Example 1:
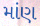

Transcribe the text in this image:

માંણ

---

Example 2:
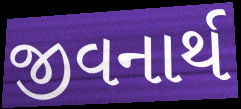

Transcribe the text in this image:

જીવનાર્થ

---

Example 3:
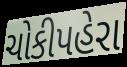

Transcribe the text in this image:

ચોકીપહેરા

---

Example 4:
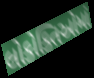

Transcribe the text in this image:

લોકોક્તિઓમાં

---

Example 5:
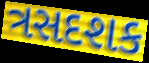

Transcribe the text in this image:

ત્રસદશક